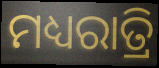
ମଧ୍ୟରାତ୍ରି